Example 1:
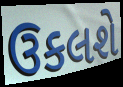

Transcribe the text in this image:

ઉકલશે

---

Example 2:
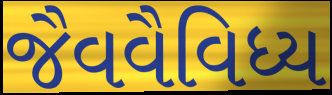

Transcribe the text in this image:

જૈવવૈવિધ્ય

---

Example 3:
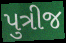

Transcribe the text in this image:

પુત્રીજ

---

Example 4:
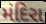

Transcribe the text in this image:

મંદિરા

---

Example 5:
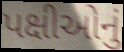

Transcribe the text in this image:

પક્ષીઓનું